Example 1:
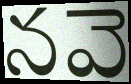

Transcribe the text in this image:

నవె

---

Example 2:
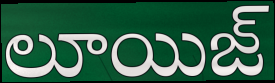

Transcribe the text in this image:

లూయిజ్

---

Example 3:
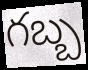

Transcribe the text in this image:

గబ్బ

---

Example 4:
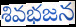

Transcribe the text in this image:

శివభజన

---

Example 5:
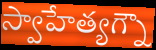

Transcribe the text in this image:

స్వాహేత్యగ్నౌ